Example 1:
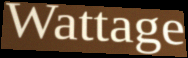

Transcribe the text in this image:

Wattage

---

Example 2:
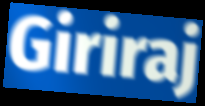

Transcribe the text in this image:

Giriraj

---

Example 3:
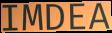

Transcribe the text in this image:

IMDEA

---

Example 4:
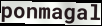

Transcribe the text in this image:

ponmagal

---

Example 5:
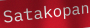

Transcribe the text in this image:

Satakopan